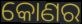
କୋଣର